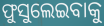
ଫୁସୁଲେଇବାକୁ